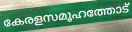
കേരളസമൂഹത്തോട്